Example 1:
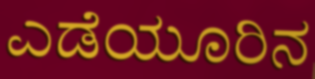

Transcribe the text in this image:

ಎಡೆಯೂರಿನ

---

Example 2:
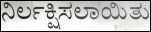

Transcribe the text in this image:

ನಿರ್ಲಕ್ಷಿಸಲಾಯಿತು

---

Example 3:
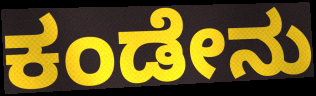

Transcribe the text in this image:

ಕಂಡೇನು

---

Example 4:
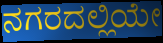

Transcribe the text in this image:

ನಗರದಲ್ಲಿಯೇ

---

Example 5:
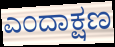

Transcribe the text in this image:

ಎಂದಾಕ್ಷಣ